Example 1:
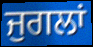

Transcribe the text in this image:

ਜੁਗਲਾਂ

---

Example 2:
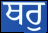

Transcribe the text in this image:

ਥਰੁ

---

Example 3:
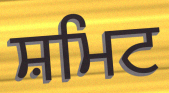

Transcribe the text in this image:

ਸ਼ਮਿਟ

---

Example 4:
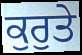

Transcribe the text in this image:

ਕੁਰੁਤੇ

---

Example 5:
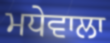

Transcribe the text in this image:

ਮਧੇਵਾਲਾ